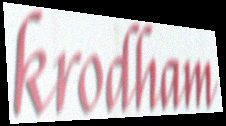
krodham